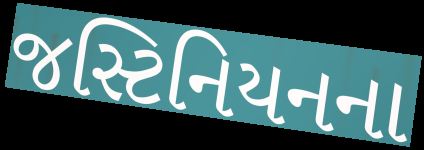
જસ્ટિનિયનના